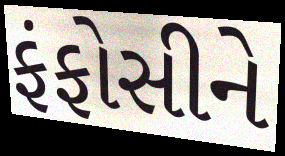
ફંફોસીને